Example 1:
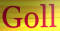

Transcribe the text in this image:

Goll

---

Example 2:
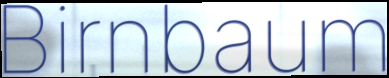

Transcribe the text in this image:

Birnbaum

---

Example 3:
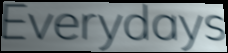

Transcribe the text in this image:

Everydays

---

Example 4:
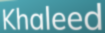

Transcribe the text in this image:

Khaleed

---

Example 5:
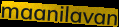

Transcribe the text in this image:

maanilavan